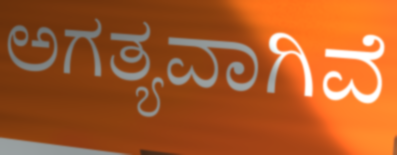
ಅಗತ್ಯವಾಗಿವೆ